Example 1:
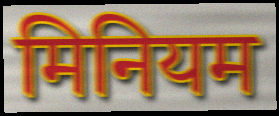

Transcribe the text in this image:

मिनियम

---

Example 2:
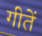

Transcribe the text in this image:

गीतें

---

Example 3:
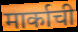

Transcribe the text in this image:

मार्काची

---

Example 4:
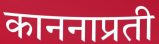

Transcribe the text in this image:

काननाप्रती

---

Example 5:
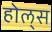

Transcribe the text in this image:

होल्स